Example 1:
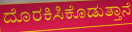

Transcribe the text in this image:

ದೊರಕಿಸಿಕೊಡುತ್ತಾನೆ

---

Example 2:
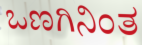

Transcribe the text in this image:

ಒಣಗಿನಿಂತ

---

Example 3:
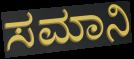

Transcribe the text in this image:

ಸಮಾನಿ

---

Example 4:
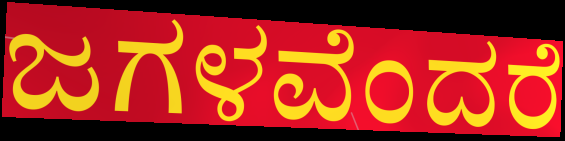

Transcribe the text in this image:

ಜಗಳವೆಂದರೆ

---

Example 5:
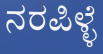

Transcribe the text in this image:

ನರಪಿಳ್ಳೆ